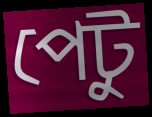
পেটু